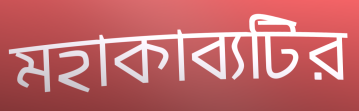
মহাকাব্যটির